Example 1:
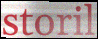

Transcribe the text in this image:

storil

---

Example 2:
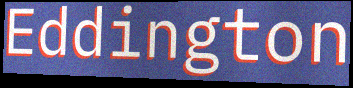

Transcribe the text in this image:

Eddington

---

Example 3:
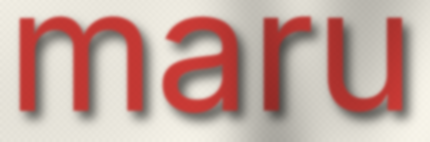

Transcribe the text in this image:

maru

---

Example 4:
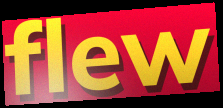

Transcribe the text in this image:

flew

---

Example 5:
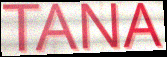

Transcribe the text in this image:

TANA